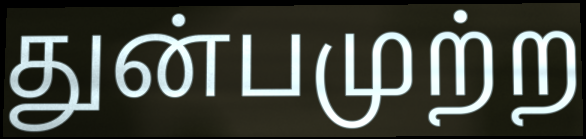
துன்பமுற்ற